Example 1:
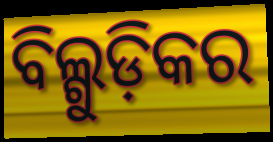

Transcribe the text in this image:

ବିଲ୍ଗୁଡ଼ିକର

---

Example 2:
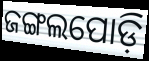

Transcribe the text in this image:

ଜଙ୍ଗଲପୋଡ଼ି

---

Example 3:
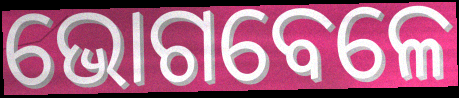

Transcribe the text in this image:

ଭୋଗବେଳେ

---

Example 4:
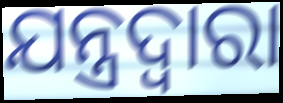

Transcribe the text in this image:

ଯନ୍ତ୍ରଦ୍ଵାରା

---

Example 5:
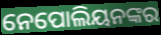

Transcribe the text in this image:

ନେପୋଲିୟନଙ୍କର